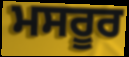
ਮਸਰੂਰ